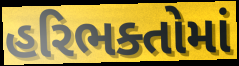
હરિભક્તોમાં